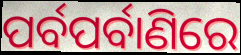
ପର୍ବପର୍ବାଣିରେ